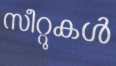
സീറ്റുകൾ